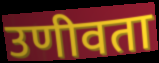
उणीवता